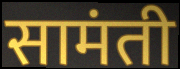
सामंती